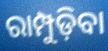
ରାମ୍ପୁଡ଼ିବା